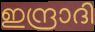
ഇന്ദ്രാദി